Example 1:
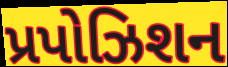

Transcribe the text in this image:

પ્રપોઝિશન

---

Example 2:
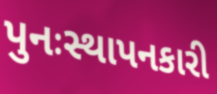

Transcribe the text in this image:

પુનઃસ્થાપનકારી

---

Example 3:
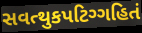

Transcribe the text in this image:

સવત્થુકપટિગ્ગહિતં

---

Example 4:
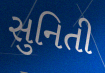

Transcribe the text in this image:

સુનિતી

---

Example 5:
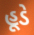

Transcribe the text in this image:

હૂડે